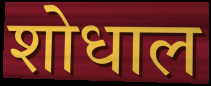
शोधाल